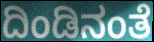
ದಿಂಡಿನಂತೆ